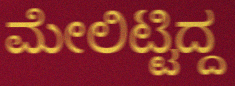
ಮೇಲಿಟ್ಟಿದ್ದ